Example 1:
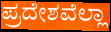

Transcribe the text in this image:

ಪ್ರದೇಶವೆಲ್ಲಾ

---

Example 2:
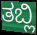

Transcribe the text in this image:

ತಬ್ಲಿ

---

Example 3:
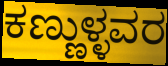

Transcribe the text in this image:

ಕಣ್ಣುಳ್ಳವರ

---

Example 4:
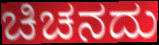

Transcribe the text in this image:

ಚಿಚನದು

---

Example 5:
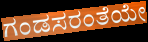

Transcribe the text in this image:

ಗಂಡಸರಂತೆಯೇ